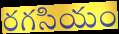
రగసియం